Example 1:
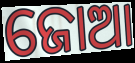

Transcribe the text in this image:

ଜୋଆ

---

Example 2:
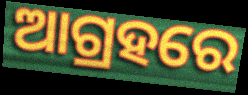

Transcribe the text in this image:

ଆଗ୍ରହରେ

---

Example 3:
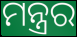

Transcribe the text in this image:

ମନ୍ତ୍ରର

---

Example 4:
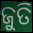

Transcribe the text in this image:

ଜୁତି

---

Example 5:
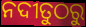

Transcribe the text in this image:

ନଦୀତୁଠରୁ